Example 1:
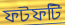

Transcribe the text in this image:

ফটফটি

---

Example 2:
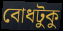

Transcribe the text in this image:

বোধটুকু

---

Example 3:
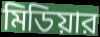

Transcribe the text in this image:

মিডিয়ার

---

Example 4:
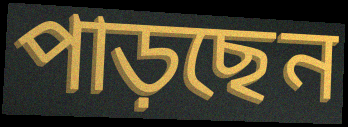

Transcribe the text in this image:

পাড়ছেন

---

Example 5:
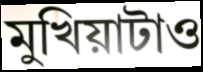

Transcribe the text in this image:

মুখিয়াটাও